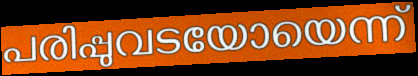
പരിപ്പുവടയോയെന്ന്